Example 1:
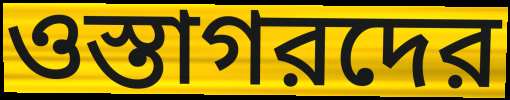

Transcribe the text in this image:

ওস্তাগরদের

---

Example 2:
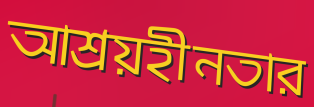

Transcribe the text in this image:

আশ্রয়হীনতার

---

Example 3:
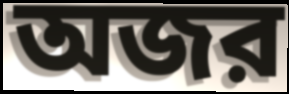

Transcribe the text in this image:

অজর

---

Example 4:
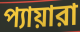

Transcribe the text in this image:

প্যায়ারা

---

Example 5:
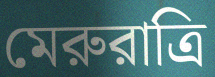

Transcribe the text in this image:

মেরুরাত্রি